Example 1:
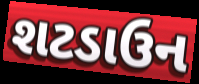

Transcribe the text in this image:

શટડાઉન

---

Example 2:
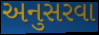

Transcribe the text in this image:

અનુસરવા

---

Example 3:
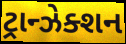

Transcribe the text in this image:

ટ્રાન્ઝેક્શન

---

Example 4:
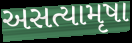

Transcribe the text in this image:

અસત્યામૃષા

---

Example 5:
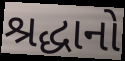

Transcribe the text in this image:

શ્રદ્ધાનો